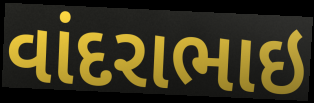
વાંદરાભાઇ